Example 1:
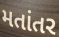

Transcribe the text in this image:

મતાંતર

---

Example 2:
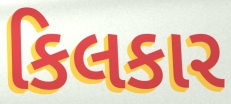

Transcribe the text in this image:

કિલકાર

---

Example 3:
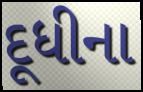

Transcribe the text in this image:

દૂધીના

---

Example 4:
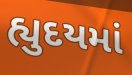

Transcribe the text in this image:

હ્યુદયમાં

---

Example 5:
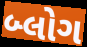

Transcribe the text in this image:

બ્લોગ